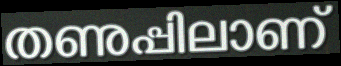
തണുപ്പിലാണ്